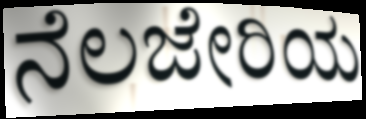
ನೆಲಜೇರಿಯ